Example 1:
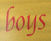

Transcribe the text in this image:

boys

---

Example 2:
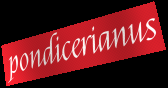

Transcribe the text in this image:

pondicerianus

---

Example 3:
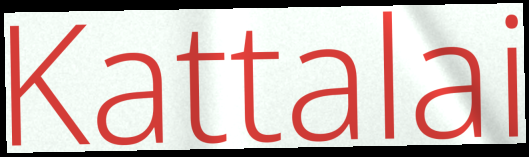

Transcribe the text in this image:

Kattalai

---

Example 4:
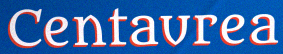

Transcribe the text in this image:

Centaurea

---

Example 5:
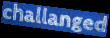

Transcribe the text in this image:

challanged